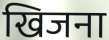
खिजना